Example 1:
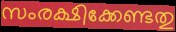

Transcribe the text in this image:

സംരക്ഷിക്കേണ്ടതു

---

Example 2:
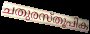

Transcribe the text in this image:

ചതുരസ്തൂപിക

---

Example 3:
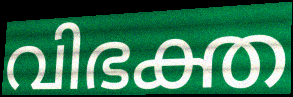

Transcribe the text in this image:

വിഭക്ത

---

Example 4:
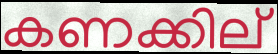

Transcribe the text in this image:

കണക്കില്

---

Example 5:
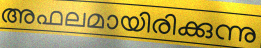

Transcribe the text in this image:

അഫലമായിരിക്കുന്നു